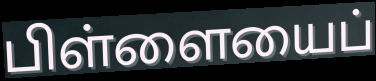
பிள்ளையைப்